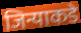
जिन्याकडे